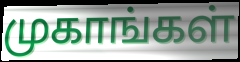
முகாங்கள்